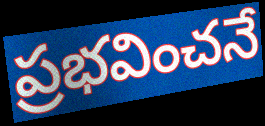
ప్రభవించనే